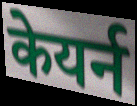
केयर्न